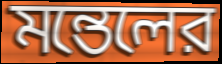
মন্তেলের